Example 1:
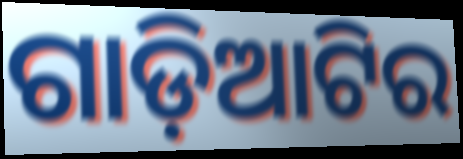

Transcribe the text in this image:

ଗାଡ଼ିଆଟିର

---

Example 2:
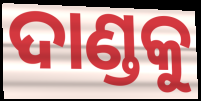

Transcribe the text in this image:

ଦାଣ୍ଡକୁ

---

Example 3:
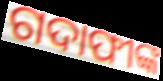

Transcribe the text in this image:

ଗଦାଫୀଙ୍କ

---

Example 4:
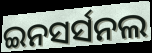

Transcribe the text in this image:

ଇନସର୍ସନଲ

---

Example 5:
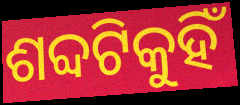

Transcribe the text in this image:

ଶବ୍ଦଟିକୁହିଁ